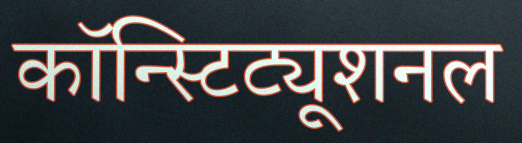
कॉन्स्टिट्यूशनल